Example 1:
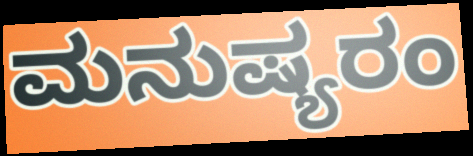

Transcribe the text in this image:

ಮನುಷ್ಯರಂ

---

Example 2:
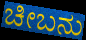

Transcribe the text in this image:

ಚೀಬನು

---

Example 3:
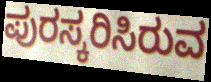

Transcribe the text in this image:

ಪುರಸ್ಕರಿಸಿರುವ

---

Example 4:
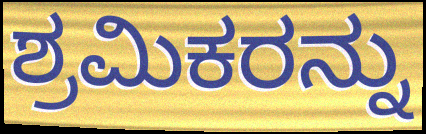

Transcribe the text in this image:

ಶ್ರಮಿಕರನ್ನು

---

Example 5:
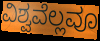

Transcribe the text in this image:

ವಿಶ್ವವೆಲ್ಲವೂ